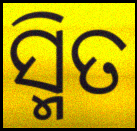
ସ୍ମିତ